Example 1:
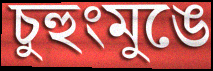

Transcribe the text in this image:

চুহুংমুঙে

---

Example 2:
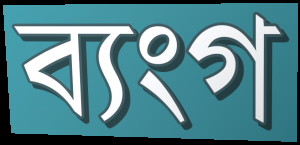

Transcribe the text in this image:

ব্যংগ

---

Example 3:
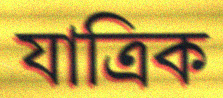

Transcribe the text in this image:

যাত্ৰিক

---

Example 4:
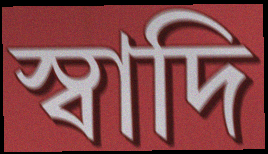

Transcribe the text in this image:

স্বাদি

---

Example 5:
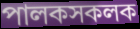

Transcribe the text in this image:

পালকসকলক